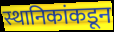
स्थानिकांकडून